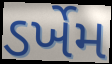
ડર્ખેમ